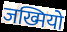
जख्मियो